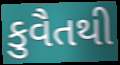
કુવૈતથી